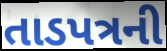
તાડપત્રની